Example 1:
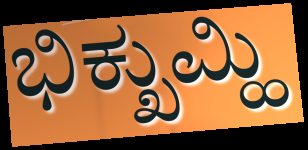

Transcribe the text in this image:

ಭಿಕ್ಖುಮ್ಹಿ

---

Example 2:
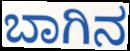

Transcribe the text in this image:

ಬಾಗಿನ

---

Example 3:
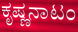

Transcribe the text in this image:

ಕೃಷ್ಣನಾಟಂ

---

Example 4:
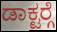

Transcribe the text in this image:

ಡಾಕ್ಟರ್‍ಗೆ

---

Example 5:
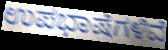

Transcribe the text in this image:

ಉಪಭಾಷೆಗಳಿವೆ